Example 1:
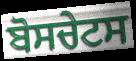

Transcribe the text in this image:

ਬੋਸਚੇਟਸ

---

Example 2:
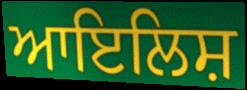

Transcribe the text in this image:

ਆਇਲਿਸ਼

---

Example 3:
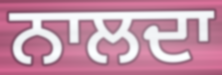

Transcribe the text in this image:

ਨਾਲਦਾ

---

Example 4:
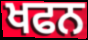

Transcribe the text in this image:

ਖਫਨ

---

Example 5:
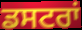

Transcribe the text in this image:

ਡਸਟਰਾਂ